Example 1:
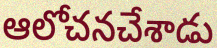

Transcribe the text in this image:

ఆలోచనచేశాడు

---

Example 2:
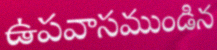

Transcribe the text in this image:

ఉపవాసముండిన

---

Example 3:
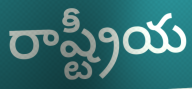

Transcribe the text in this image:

రాష్ట్రీయ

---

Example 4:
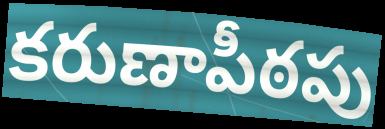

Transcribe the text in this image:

కరుణాపీఠపు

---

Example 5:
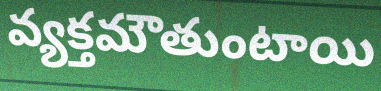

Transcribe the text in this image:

వ్యక్తమౌతుంటాయి